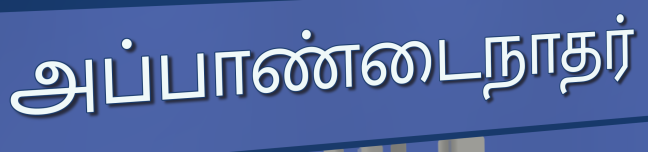
அப்பாண்டைநாதர்